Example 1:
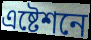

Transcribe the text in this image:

এষ্টেশনে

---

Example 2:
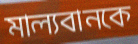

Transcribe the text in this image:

মাল্যবানকে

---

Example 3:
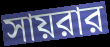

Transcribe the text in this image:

সায়রার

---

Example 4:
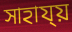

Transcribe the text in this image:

সাহায্য়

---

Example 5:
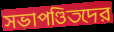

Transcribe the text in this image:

সভাপণ্ডিতদের